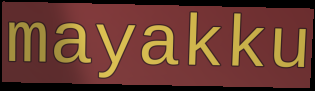
mayakku